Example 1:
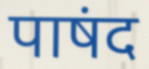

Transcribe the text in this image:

पाषंद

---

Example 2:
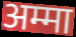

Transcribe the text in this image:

अम्‍मा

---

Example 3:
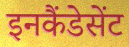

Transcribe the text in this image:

इनकैंडेसेंट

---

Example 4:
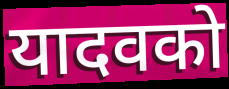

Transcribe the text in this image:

यादवको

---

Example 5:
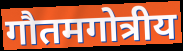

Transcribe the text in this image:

गौतमगोत्रीय